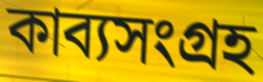
কাব্যসংগ্রহ